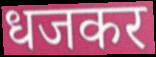
धजकर